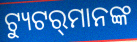
ଟ୍ୟୁଟର୍‍ମାନଙ୍କ